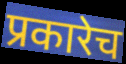
प्रकारेच